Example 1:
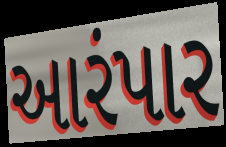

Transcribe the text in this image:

આરંપાર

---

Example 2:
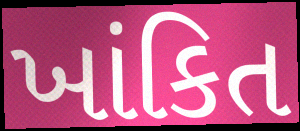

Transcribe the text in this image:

ખાંકિત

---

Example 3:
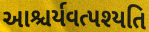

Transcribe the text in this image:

આશ્ચર્યવત્પશ્યતિ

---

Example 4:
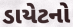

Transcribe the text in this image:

ડાયેટનો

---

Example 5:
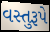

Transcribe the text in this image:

વસ્તુરૂપે